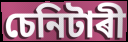
চেনিটাৰী